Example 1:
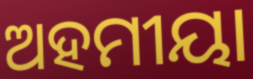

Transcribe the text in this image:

ଅହମୀୟା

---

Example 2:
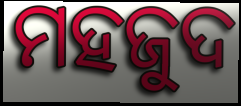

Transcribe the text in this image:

ମହଜୁଦ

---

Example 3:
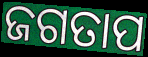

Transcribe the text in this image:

ଜଗତାପ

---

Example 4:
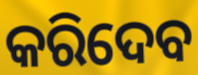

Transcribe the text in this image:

କରିଦେବ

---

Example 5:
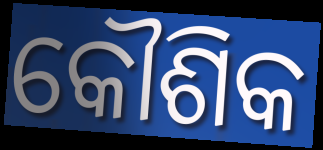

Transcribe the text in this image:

କୌଶିକ